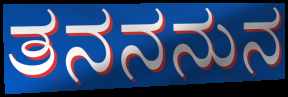
ತನನನುನ